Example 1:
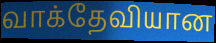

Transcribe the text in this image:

வாக்தேவியான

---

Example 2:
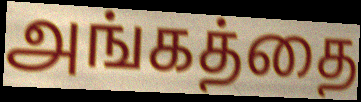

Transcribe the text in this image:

அங்கத்தை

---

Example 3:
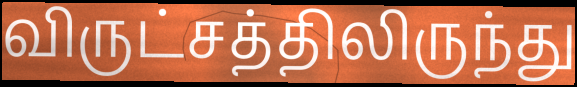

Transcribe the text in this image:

விருட்சத்திலிருந்து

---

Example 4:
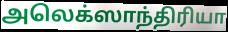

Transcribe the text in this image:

அலெக்ஸாந்திரியா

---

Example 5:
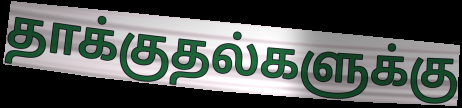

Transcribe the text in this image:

தாக்குதல்களுக்கு